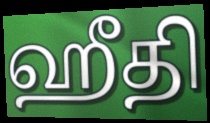
ஹீதி